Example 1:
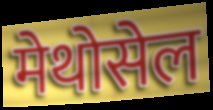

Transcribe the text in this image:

मेथोसेल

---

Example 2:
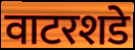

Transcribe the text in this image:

वाटरशडे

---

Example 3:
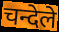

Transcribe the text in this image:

चन्देले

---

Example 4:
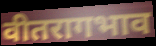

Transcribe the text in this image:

वीतरागभाव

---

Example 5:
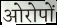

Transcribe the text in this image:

ओरोपों